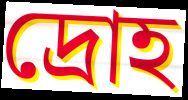
দ্রোহ